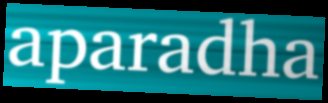
aparadha